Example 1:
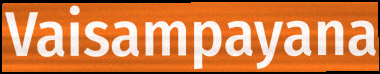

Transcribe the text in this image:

Vaisampayana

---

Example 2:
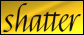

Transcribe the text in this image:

shatter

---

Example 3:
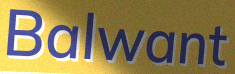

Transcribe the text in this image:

Balwant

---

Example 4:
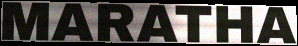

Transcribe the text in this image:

MARATHA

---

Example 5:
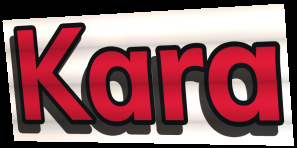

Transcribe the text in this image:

Kara